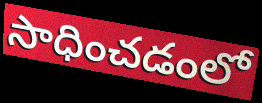
సాధించడంలో